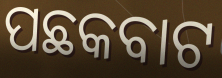
ପଛକବାଟ